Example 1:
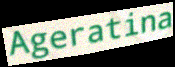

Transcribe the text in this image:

Ageratina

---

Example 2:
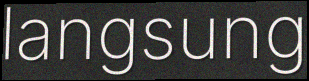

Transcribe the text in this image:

langsung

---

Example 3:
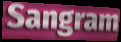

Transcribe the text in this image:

Sangram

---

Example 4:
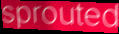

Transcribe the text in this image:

sprouted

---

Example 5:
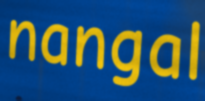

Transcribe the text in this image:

nangal